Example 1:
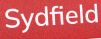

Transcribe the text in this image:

Sydfield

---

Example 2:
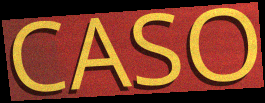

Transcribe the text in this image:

CASO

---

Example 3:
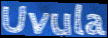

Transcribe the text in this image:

Uvula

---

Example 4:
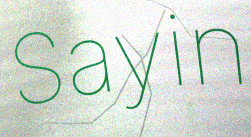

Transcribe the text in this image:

Sayin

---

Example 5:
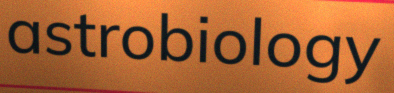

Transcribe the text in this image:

astrobiology